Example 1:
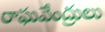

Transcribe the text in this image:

రాఘవేంద్రులు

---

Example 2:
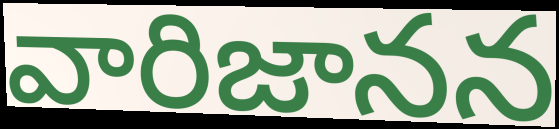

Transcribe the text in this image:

వారిజానన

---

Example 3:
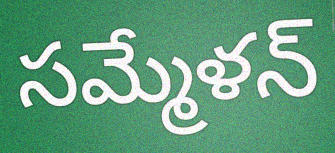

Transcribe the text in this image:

సమ్మేళన్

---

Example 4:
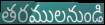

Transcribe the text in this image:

తరములనుండి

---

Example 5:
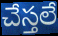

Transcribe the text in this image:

చేస్తలే